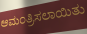
ಆಮಂತ್ರಿಸಲಾಯಿತು